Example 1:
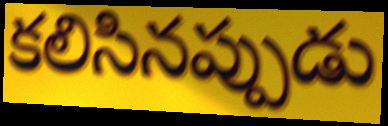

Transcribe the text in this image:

కలిసినప్పుడు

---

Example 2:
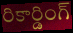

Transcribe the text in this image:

రికార్డింగ్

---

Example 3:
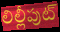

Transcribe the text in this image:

లిల్లీపుట్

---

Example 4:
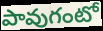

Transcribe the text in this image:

పావుగంటో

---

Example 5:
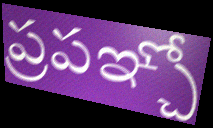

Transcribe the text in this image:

ప్రపఞ్చో